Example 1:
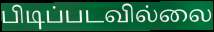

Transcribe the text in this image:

பிடிப்படவில்லை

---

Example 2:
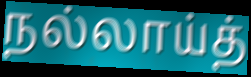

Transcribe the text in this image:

நல்லாய்த்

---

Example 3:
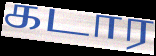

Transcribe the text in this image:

கடார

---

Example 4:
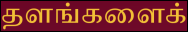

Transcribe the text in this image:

தளங்களைக்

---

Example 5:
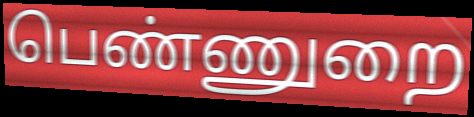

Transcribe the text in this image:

பெண்ணுறை